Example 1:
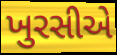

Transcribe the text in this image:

ખુરસીએ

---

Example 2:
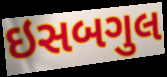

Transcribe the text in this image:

ઇસબગુલ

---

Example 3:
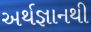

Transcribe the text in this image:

અર્થજ્ઞાનથી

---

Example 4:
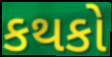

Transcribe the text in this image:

કથકો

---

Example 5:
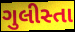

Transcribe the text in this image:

ગુલીસ્તા